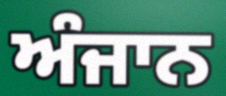
ਅੰਜਾਨ